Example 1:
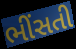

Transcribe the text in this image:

ભીંસતી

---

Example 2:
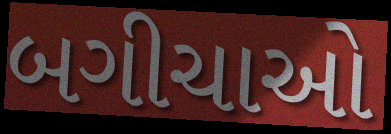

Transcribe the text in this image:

બગીચાઓ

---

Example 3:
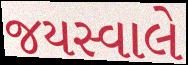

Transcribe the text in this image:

જયસ્વાલે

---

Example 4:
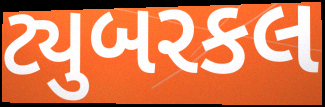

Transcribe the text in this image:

ટ્યુબરકલ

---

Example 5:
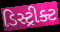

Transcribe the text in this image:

ડિસ્ટ્રીક્ટ